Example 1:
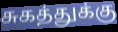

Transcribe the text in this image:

சுகத்துக்கு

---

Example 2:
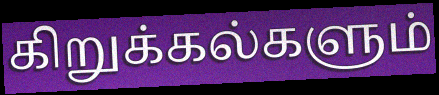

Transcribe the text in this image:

கிறுக்கல்களும்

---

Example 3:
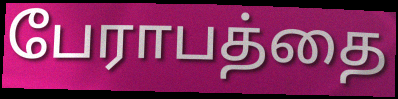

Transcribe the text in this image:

பேராபத்தை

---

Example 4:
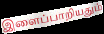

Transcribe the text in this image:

இளைப்பாறியதும்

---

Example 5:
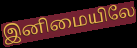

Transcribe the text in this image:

இனிமையிலே